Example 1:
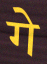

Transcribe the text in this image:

गे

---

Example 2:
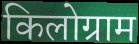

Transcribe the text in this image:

किलोग्राम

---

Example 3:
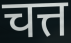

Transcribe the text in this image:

चत्त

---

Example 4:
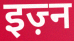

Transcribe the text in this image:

इज़्न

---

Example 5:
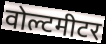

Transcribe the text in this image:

वोल्टमीटर